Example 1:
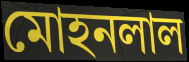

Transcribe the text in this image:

মোহনলাল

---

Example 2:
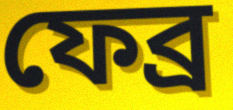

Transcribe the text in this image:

ফেব্র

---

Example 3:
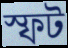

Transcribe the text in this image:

স্ফট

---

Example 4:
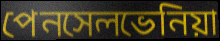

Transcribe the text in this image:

পেনসেলভেনিয়া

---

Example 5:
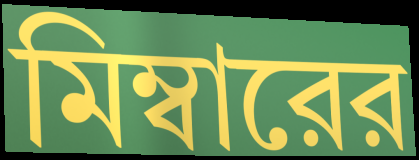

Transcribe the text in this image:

মিম্বারের